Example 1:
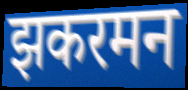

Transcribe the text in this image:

झकरमन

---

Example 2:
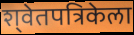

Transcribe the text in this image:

श्वेतपत्रिकेला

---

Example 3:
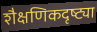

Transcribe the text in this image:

शैक्षणिकदृष्ट्या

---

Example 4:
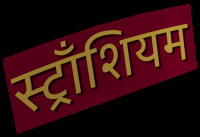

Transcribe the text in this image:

स्ट्राँशियम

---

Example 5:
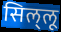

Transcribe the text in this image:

सिल्लू